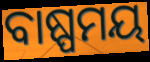
ବାଷ୍ପମୟ